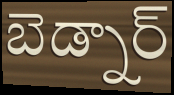
బెడ్నార్